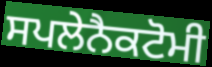
ਸਪਲੇਨੈਕਟੋਮੀ